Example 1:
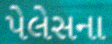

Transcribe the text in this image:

પેલેસના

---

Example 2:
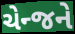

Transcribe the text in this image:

ચેન્જને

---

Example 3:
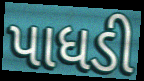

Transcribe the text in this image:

પાધડી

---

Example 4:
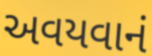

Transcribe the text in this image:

અવયવાનં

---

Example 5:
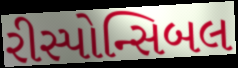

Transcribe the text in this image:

રીસ્પોન્સિબલ